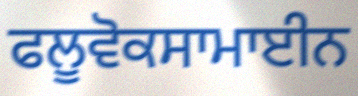
ਫਲੂਵੋਕਸਾਮਾਈਨ